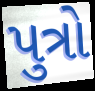
પુત્રો